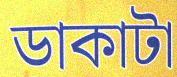
ডাকাটা